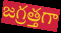
జగ్రత్తగా